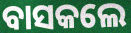
ବାସକଲେ